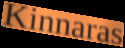
Kinnaras